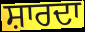
ਸ਼ਾਰਦਾ